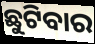
ଛୁଟିବାର